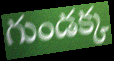
గుండక్క